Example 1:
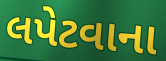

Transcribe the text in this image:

લપેટવાના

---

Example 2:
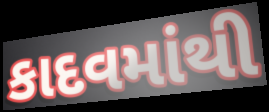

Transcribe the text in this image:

કાદવમાંથી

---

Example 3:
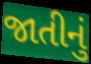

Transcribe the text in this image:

જાતીનું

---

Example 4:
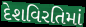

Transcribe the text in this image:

દેશવિરતિમાં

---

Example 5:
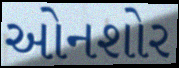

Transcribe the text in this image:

ઓનશોર